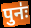
पुनः॑